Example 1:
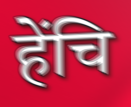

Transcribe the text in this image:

हेंचि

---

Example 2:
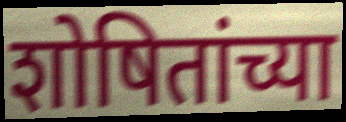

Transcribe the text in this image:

शोषितांच्या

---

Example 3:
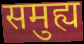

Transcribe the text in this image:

समुह्य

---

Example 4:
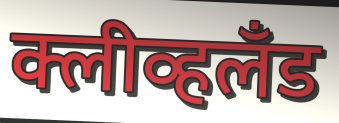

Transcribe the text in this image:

क्लीव्हलँड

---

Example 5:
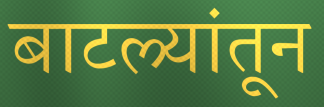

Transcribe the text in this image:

बाटल्यांतून